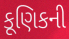
કૂણિકની